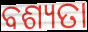
ବଶ୍ୟତା